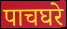
पाचघरे